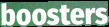
boosters